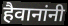
हैवानांनी